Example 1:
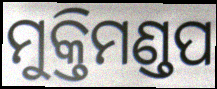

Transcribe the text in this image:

ମୁକ୍ତିମଣ୍ଡପ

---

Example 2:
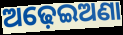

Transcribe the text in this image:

ଅଢ଼େଇଅଣା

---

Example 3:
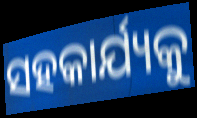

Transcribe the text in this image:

ସହକାର୍ଯ୍ୟକୁ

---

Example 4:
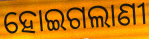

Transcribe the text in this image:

ହୋଇଗଲାଣୀ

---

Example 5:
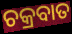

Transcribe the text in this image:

ଚକ୍ରବାତ